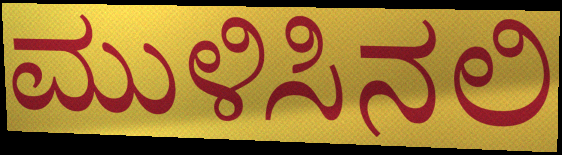
ಮುಳಿಸಿನಲಿ